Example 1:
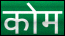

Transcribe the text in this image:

कोम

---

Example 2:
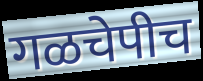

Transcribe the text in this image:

गळचेपीच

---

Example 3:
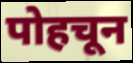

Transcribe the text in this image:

पोहचून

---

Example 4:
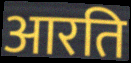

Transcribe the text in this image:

आरति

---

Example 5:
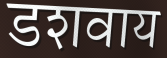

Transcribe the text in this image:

डशवाय